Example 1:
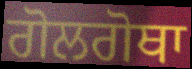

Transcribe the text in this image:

ਗੋਲਗੋਥਾ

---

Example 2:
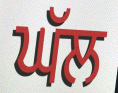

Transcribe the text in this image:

ਘੱਲ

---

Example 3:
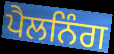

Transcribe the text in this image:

ਪੈਲਨਿੰਗ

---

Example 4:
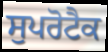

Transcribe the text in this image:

ਸੁਪਰੋਟੈਕ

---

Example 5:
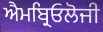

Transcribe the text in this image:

ਐਮਬ੍ਰਿਓਲੋਜੀ